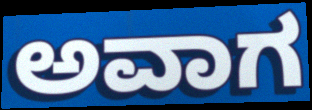
ಅವಾಗ